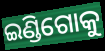
ଇଣ୍ଡିଗୋକୁ